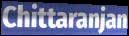
Chittaranjan